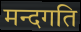
मन्दगति